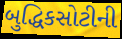
બુદ્ધિકસોટીની